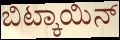
ಬಿಟ್ಕಾಯಿನ್